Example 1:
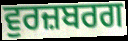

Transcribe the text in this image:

ਵੁਰਜ਼ਬਰਗ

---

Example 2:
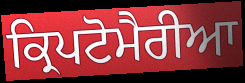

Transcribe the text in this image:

ਕ੍ਰਿਪਟੋਮੈਰੀਆ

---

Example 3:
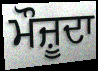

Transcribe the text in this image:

ਮੌਜ਼ੂਦਾ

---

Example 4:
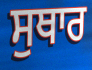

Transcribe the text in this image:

ਸੁਥਾਰ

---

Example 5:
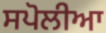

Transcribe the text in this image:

ਸਪੋਲੀਆ